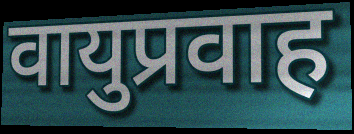
वायुप्रवाह